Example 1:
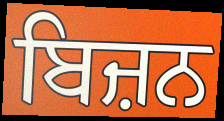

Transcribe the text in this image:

ਬਿਜ਼ਨ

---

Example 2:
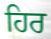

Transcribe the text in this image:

ਹਿਰ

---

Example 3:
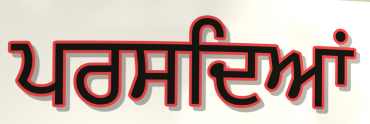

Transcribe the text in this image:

ਪਰਸਦਿਆਂ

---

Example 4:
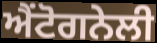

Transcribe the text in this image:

ਐਂਟੋਗਨੇਲੀ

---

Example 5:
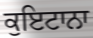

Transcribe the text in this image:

ਕੁਇਟਾਨਾ